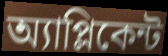
অ্যাপ্লিকেন্ট